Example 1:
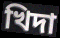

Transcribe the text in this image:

খিদা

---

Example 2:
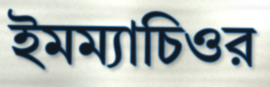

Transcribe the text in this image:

ইমম্যাচিওর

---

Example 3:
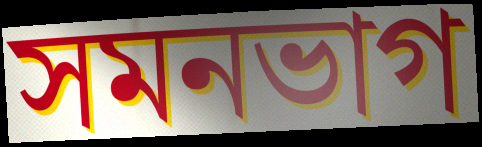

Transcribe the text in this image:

সমনভাগ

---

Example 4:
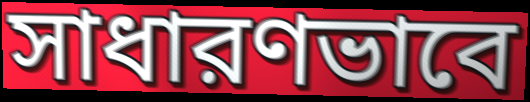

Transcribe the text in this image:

সাধারণভাবে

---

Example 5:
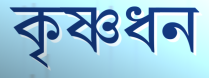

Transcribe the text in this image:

কৃষ্ণধন